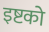
इष्टको